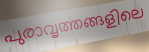
പുരാവൃത്തങ്ങളിലെ